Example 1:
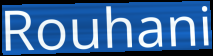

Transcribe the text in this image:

Rouhani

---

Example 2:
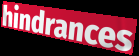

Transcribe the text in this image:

hindrances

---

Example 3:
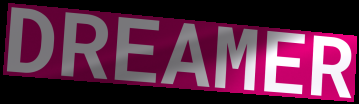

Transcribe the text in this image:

DREAMER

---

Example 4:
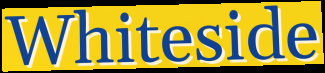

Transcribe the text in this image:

Whiteside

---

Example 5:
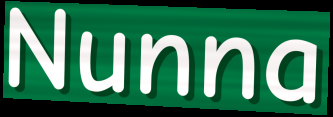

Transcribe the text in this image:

Nunna